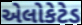
એલોકેટેડ